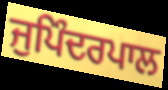
ਜੁਪਿੰਦਰਪਾਲ